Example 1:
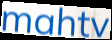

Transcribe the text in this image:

mahtv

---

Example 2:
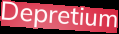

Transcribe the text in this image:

Depretium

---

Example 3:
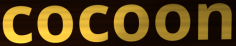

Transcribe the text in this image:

cocoon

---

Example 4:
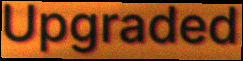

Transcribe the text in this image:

Upgraded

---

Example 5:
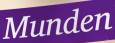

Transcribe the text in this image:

Munden